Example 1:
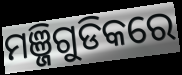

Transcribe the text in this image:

ମଞ୍ଜିଗୁଡିକରେ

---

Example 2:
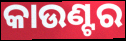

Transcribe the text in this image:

କାଉଣ୍ଟର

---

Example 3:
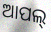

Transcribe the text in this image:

ଆପଲ୍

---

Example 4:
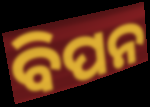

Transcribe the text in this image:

ବିପନ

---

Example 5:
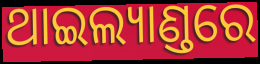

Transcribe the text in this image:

ଥାଇଲ୍ୟାଣ୍ଡରେ